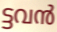
ട്ടവൻ